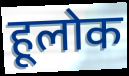
हूलोक